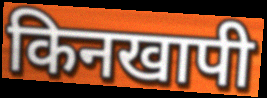
किनखापी